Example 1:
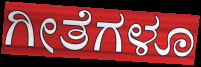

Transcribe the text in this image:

ಗೀತೆಗಳೂ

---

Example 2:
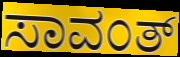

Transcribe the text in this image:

ಸಾವಂತ್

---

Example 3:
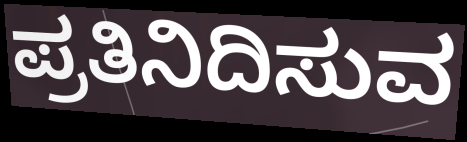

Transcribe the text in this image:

ಪ್ರತಿನಿದಿಸುವ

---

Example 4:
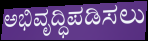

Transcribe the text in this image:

ಅಭಿವೃದ್ಧಿಪಡಿಸಲು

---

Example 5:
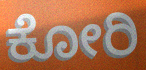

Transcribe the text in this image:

ಕೋರಿ